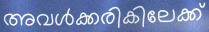
അവൾക്കരികിലേക്ക്